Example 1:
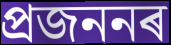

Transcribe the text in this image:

প্ৰজননৰ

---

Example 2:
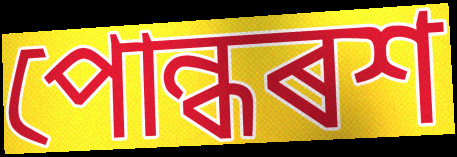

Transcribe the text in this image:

পোন্ধৰশ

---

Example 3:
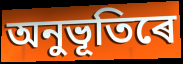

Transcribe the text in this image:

অনুভূতিৰে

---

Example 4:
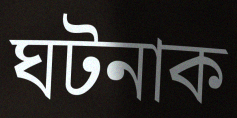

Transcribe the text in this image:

ঘটনাক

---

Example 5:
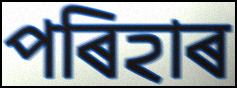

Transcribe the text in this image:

পৰিহাৰ